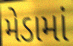
મેડામાં